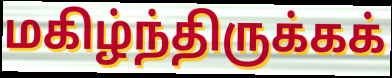
மகிழ்ந்திருக்கக்